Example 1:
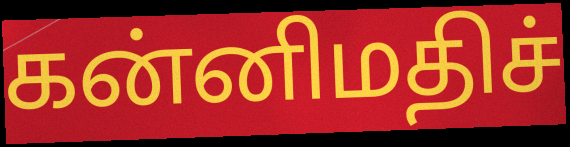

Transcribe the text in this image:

கன்னிமதிச்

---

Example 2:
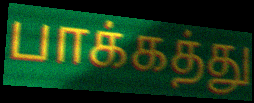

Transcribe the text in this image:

பாக்கத்து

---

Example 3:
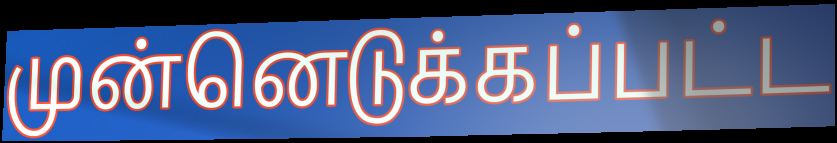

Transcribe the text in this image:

முன்னெடுக்கப்பட்ட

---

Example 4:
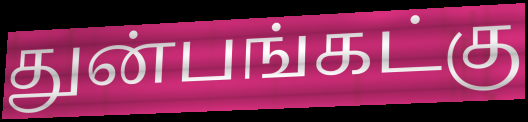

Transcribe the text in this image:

துன்பங்கட்கு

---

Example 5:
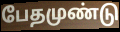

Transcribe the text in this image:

பேதமுண்டு